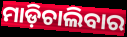
ମାଡ଼ିଚାଲିବାର